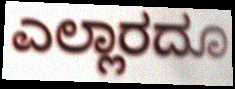
ಎಲ್ಲಾರದೂ